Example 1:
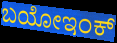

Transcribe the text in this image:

ಬಯೋಇಂಕ್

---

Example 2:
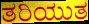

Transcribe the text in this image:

ತರಿಯುತ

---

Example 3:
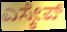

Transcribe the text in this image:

ಎಸ್ಕೇಪ್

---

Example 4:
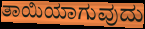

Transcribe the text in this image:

ತಾಯಿಯಾಗುವುದು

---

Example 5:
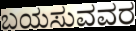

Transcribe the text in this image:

ಬಯಸುವವರ